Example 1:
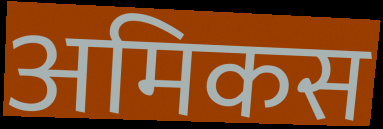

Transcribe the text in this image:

अमिकस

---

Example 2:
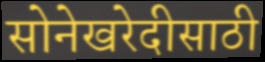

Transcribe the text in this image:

सोनेखरेदीसाठी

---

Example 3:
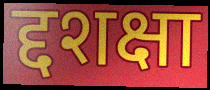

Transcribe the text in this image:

द्दशक्षा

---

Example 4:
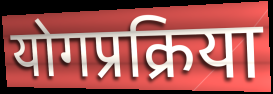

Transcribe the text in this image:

योगप्रक्रिया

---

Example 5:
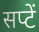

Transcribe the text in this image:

सप्टें